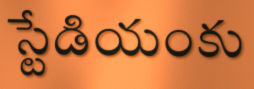
స్టేడియంకు